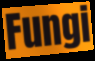
Fungi